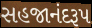
સહજાનંદરૂપ